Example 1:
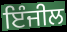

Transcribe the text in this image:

ਇੰਜੀਲ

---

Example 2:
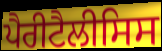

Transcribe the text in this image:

ਪੈਰੀਟੈਲੀਸਿਸ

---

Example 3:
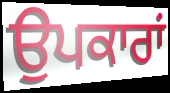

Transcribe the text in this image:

ਉਪਕਾਰਾਂ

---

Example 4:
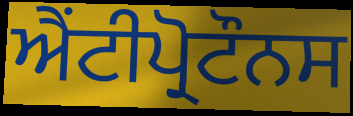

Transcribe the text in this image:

ਐਂਟੀਪ੍ਰੋਟੌਨਸ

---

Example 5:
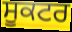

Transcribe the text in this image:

ਸੂਕਟਰ